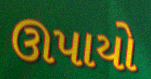
ઊપાયો